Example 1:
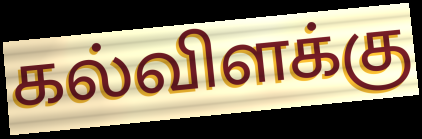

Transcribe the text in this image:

கல்விளக்கு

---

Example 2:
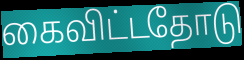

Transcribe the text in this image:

கைவிட்டதோடு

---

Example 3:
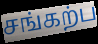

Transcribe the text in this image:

சங்கற்ப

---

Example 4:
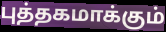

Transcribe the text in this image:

புத்தகமாக்கும்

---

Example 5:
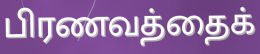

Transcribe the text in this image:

பிரணவத்தைக்